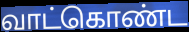
வாட்கொண்ட